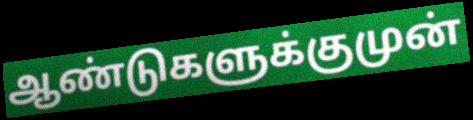
ஆண்டுகளுக்குமுன்